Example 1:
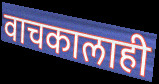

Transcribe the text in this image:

वाचकालाही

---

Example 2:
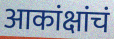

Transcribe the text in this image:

आकांक्षांचं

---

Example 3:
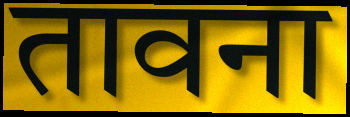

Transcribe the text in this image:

तावना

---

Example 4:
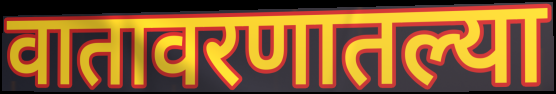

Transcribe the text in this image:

वातावरणातल्या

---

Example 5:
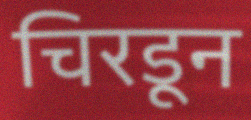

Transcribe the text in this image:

चिरडून